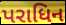
પરાધિન